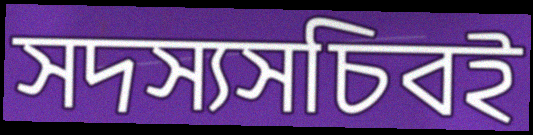
সদস্যসচিবই